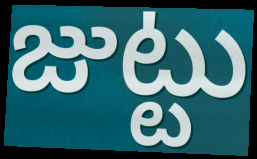
జుట్టు